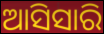
ଆସିସାରି